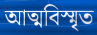
আত্মবিস্মৃত